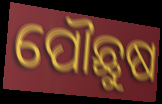
ପୌଛୁଷ